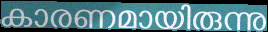
കാരണമായിരുന്നു